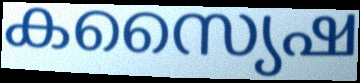
കസ്യൈഷ